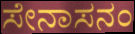
ಸೇನಾಸನಂ